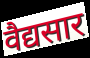
वैद्यसार